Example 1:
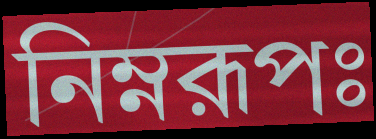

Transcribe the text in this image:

নিম্নরূপঃ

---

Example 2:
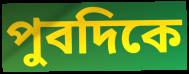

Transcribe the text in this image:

পুবদিকে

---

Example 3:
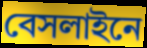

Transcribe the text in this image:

বেসলাইনে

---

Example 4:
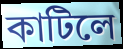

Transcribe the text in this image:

কাটিলে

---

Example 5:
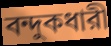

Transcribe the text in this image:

বন্দুকধারী